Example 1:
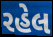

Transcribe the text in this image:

રહેલ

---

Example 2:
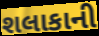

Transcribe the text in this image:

શલાકાની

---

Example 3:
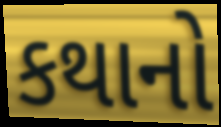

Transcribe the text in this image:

કથાનો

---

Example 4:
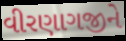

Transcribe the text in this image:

વીરણાગજીને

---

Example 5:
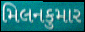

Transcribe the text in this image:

મિલનકુમાર